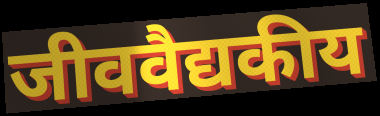
जीववैद्यकीय